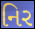
નિર